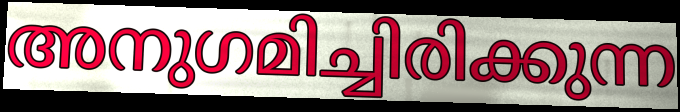
അനുഗമിച്ചിരിക്കുന്ന